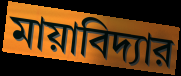
মায়াবিদ্যার